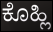
ಕೊಹ್ಲಿ